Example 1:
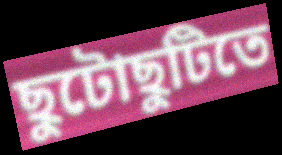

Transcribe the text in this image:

ছুটোছুটিতে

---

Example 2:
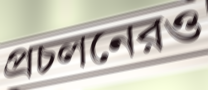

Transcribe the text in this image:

প্রচলনেরও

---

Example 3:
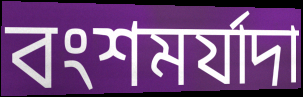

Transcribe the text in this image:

বংশমর্যাদা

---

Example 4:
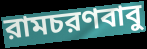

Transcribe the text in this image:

রামচরণবাবু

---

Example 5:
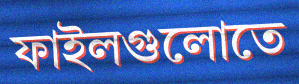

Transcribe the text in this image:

ফাইলগুলোতে